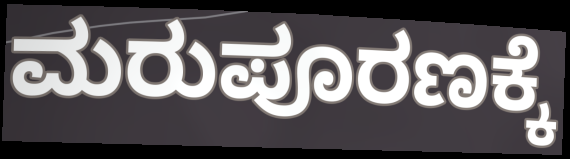
ಮರುಪೂರಣಕ್ಕೆ